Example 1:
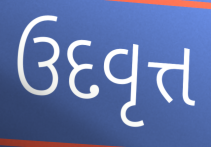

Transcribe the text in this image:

ઉદવૃત્ત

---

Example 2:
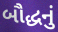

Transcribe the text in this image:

બૌદ્ધનું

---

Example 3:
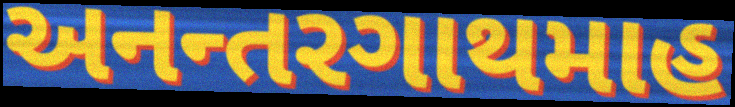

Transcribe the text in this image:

અનન્તરગાથમાહ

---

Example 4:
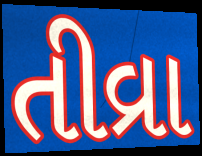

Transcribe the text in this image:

તીવ્રા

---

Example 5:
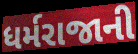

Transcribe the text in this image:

ધર્મરાજાની